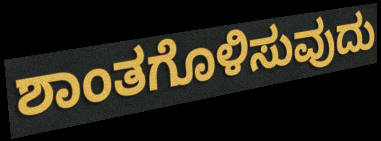
ಶಾಂತಗೊಳಿಸುವುದು